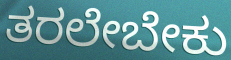
ತರಲೇಬೇಕು